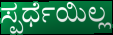
ಸ್ಪರ್ಧೆಯಿಲ್ಲ